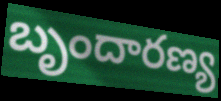
బృందారణ్య